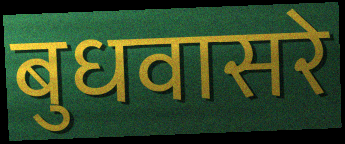
बुधवासरे